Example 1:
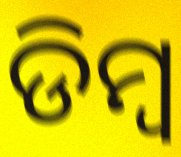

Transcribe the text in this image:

ଡିମ୍ଵ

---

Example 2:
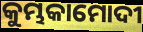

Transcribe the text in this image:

କୁମ୍ଭକାମୋଦୀ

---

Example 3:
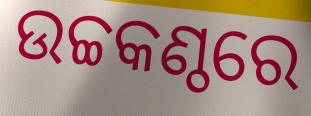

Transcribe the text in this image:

ଉଚ୍ଚକଣ୍ଠରେ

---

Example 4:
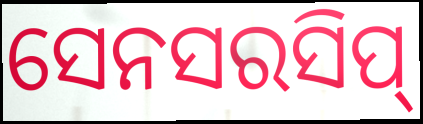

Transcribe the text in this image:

ସେନସରସିପ୍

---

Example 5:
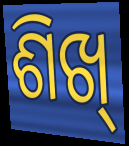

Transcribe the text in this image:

ଶିଖ୍